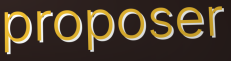
proposer